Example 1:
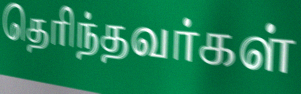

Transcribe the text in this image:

தெரிந்தவர்கள்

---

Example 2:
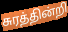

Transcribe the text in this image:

சுரத்தின்றி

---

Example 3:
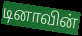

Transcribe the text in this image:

டினாவின்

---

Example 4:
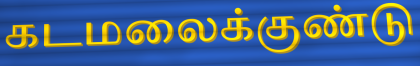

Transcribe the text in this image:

கடமலைக்குண்டு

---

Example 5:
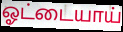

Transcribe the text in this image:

ஓட்டையாய்